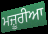
ਮਜ਼ੂਰੀਆ